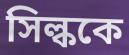
সিল্ককে